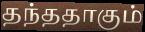
தந்ததாகும்